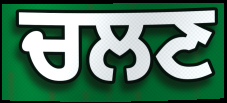
ਚਲਣ